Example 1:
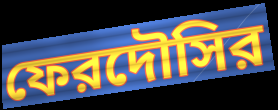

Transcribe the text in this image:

ফেরদৌসির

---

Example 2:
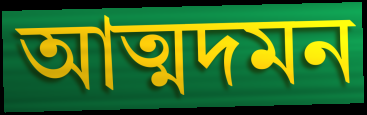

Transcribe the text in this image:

আত্মদমন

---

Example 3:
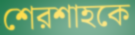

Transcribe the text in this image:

শেরশাহকে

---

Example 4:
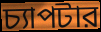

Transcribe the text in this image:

চ্যাপটার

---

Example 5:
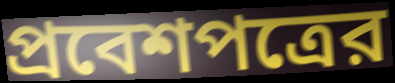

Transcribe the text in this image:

প্রবেশপত্রের